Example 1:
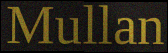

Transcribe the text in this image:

Mullan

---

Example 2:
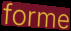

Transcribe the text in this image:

forme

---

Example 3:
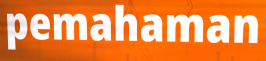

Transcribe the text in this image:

pemahaman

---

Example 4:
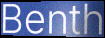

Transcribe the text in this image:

Benth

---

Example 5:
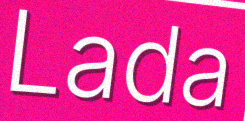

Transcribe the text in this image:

Lada